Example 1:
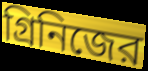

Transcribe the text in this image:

গ্রিনিজের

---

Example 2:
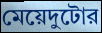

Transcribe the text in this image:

মেয়েদুটোর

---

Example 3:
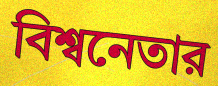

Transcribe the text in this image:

বিশ্বনেতার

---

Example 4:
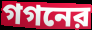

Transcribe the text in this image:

গগনের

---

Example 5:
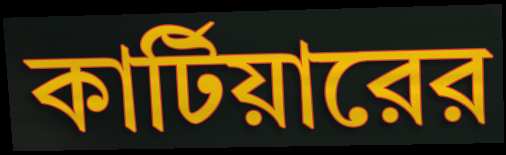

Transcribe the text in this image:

কার্টিয়ারের